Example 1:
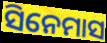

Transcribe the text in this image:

ସିନେମାସ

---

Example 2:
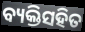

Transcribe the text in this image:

ବ୍ୟକ୍ତିସହିତ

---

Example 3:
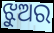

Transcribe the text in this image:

ଝୁଅର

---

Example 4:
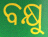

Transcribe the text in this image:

ବକ୍ଷୁ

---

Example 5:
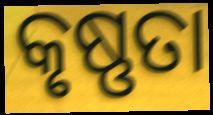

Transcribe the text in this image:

କୃଷ୍ଣତା